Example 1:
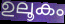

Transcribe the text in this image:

ഉലൂകം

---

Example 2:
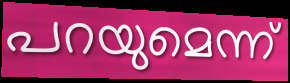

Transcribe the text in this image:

പറയുമെന്ന്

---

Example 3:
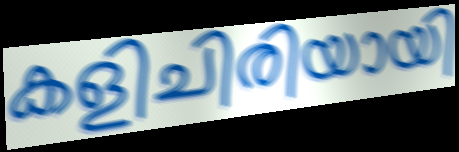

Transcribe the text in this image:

കളിചിരിയായി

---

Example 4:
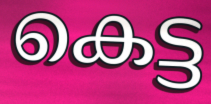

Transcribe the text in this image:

കെട്ട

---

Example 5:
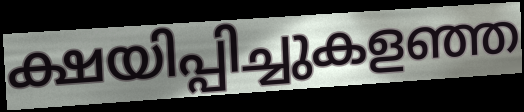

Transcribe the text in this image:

ക്ഷയിപ്പിച്ചുകളഞ്ഞ